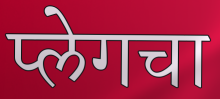
प्लेगचा